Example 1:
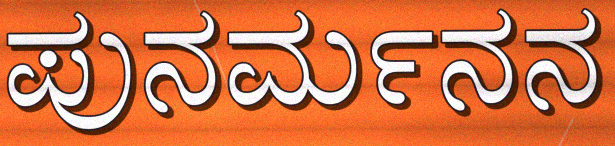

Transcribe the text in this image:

ಪುನರ್ಮನನ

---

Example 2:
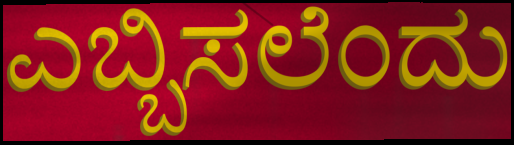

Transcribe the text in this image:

ಎಬ್ಬಿಸಲೆಂದು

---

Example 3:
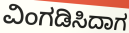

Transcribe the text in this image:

ವಿಂಗಡಿಸಿದಾಗ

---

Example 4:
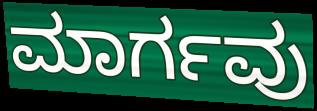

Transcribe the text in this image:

ಮಾರ್ಗವು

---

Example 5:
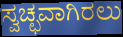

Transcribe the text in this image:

ಸ್ವಚ್ಛವಾಗಿರಲು